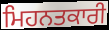
ਮਿਹਨਤਕਾਰੀ